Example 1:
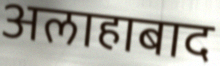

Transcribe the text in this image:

अलाहाबाद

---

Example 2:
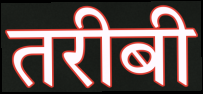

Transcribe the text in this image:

तरीबी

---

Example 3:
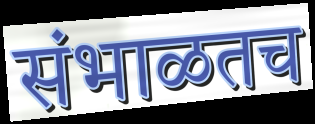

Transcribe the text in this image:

संभाळतच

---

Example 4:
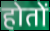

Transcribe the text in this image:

होतों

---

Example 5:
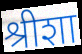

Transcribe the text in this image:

श्रीशा